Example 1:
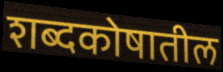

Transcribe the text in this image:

शब्दकोषातील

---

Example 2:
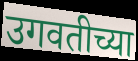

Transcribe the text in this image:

उगवतीच्या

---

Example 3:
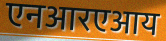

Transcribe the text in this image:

एनआरएआय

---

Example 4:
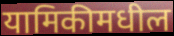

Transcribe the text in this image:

यामिकीमधील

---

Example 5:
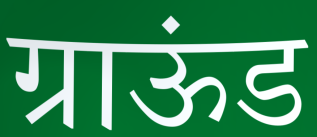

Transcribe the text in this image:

ग्राऊंड